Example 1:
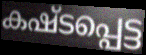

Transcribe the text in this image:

കഷ്ടപ്പെട്ട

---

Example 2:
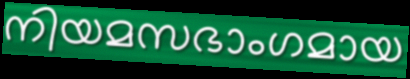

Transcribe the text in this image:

നിയമസഭാംഗമായ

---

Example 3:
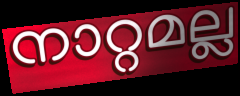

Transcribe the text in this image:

നാറ്റമല്ല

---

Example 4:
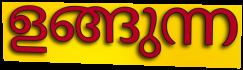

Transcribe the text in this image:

ളങ്ങുന്ന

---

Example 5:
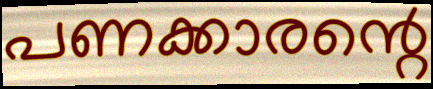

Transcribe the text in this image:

പണക്കാരന്റെ